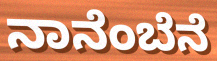
ನಾನೆಂಬೆನೆ